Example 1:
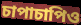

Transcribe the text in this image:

চাপাচাপিও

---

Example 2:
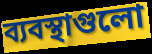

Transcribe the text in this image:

ব্যবস্থাগুলো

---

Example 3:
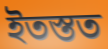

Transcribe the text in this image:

ইতস্তত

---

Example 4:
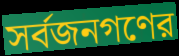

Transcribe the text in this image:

সর্বজনগণের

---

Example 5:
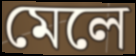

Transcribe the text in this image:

মেলে